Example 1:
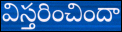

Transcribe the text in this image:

విస్తరించిందా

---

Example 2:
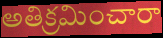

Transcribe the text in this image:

అతిక్రమించారా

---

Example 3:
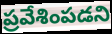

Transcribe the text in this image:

ప్రవేశింపడని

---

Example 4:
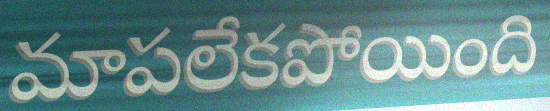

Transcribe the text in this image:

మాపలేకపోయింది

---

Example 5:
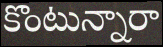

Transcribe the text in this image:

కొంటున్నారా